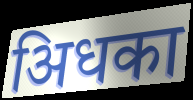
अिधका